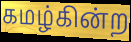
கமழ்கின்ற